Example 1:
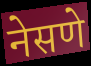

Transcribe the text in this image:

नेसणे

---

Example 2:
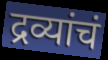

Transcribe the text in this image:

द्रव्यांचं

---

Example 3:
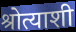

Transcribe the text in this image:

श्रोत्याशी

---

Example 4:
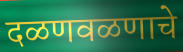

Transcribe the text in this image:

दळणवळणाचे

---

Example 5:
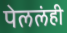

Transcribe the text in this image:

पेललंही